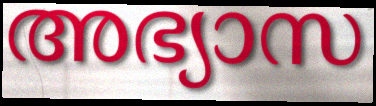
അഭ്യാസ